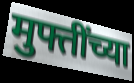
मुफ्तींच्या